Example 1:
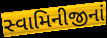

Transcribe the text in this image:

સ્વામિનીજીનાં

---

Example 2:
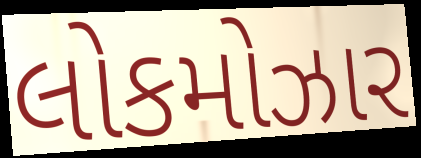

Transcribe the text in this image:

લોકમોઝાર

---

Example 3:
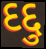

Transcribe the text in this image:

દદ્દુ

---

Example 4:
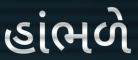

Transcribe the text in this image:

હાંભળે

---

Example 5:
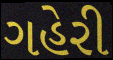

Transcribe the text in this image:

ગહેરી